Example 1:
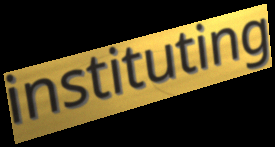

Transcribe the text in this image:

instituting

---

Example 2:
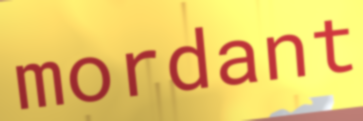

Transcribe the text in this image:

mordant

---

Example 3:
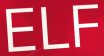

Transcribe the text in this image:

ELF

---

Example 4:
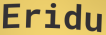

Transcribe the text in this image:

Eridu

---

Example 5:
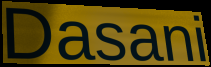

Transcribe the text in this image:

Dasani